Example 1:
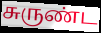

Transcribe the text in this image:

சுருண்ட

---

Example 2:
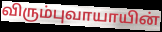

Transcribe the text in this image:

விரும்புவாயாயின்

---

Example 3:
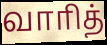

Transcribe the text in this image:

வாரித்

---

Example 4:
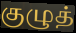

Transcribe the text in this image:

குழுத்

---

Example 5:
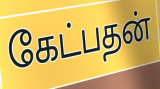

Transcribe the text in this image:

கேட்பதன்